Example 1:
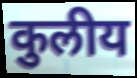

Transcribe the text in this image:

कुलीय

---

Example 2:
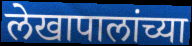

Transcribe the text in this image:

लेखापालांच्या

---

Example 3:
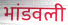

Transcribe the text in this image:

भांडवली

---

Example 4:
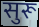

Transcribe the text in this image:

सुरू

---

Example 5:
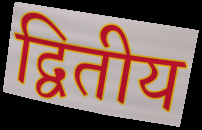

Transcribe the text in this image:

द्वितीय